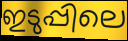
ഇടുപ്പിലെ